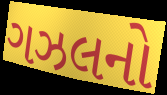
ગઝલનો